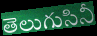
తెలుగుసినీ